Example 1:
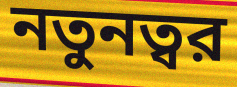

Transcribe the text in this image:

নতুনত্বর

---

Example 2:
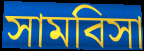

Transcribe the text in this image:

সামবিসা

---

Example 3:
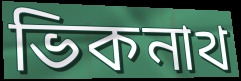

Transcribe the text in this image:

ভিকনাথ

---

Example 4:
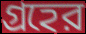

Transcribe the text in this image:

গ্রহের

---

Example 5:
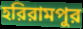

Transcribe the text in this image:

হরিরামপুর